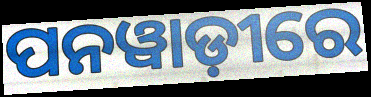
ପନୱାଡ଼ୀରେ